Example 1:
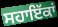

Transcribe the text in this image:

ਸਹਾਇੱਕਾਂ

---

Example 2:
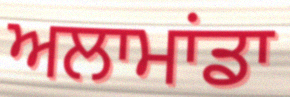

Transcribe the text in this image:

ਅਲਾਮਾਂਡਾ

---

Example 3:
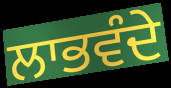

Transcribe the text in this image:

ਲਾਭਵੰਦੇ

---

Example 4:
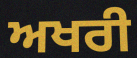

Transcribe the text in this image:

ਅਖਰੀ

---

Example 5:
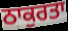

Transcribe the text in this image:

ਠਾਕੁਰਤਾ